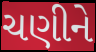
ચણીને